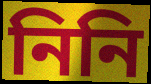
নিনি